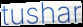
tushar